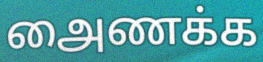
அைணக்க